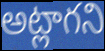
అట్లాగని